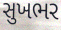
સુખભર